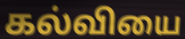
கல்வியை